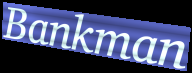
Bankman